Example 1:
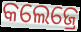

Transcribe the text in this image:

କଲେଜ୍ରେ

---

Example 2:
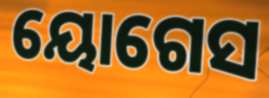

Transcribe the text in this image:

ୟୋଗେସ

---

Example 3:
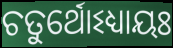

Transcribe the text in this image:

ଚତୁର୍ଥୋଽଧ୍ୟାୟଃ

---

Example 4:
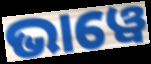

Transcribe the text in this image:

ଭାୱେ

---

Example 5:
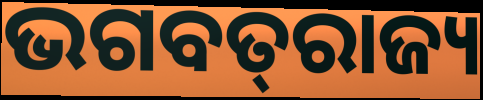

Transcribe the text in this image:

ଭଗବତ୍‌ରାଜ୍ୟ